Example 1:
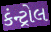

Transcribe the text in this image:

કંન્ટ્રોલ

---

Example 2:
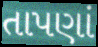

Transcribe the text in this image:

તાપણાં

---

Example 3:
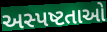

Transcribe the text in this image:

અસ્પષ્ટતાઓ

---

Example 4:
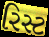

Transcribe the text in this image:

રિસ્ટ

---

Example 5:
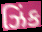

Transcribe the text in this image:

ઝિંક